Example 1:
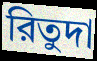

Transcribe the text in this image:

রিতুদা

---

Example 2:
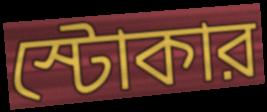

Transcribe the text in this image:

স্টোকার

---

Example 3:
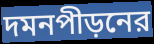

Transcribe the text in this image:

দমনপীড়নের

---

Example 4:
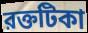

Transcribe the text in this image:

রক্তটিকা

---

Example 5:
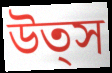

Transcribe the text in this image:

উত্স